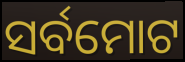
ସର୍ବମୋଟ